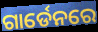
ଗାର୍ଡେନରେ